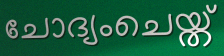
ചോദ്യംചെയ്ത്